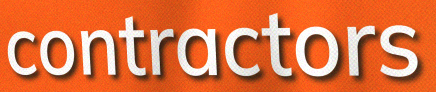
contractors